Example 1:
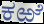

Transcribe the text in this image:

ಕಱೆ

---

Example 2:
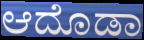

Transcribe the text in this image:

ಆದೊಡಾ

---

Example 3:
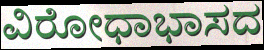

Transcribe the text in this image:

ವಿರೋಧಾಭಾಸದ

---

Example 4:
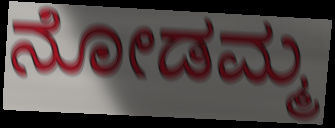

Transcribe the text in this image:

ನೋಡಮ್ಮ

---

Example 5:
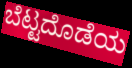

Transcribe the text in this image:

ಬೆಟ್ಟದೊಡೆಯ